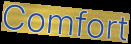
Comfort